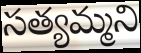
సత్యమ్మని